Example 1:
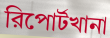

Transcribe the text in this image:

রিপোর্টখানা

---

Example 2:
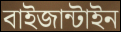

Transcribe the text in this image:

বাইজান্টাইন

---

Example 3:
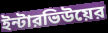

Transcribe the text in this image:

ইন্টারভিউয়ের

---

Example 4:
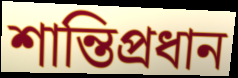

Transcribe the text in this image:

শান্তিপ্রধান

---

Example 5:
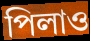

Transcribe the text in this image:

পিলাও